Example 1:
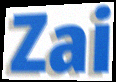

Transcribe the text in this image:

Zai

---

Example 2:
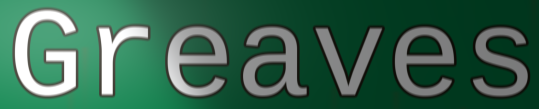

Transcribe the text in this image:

Greaves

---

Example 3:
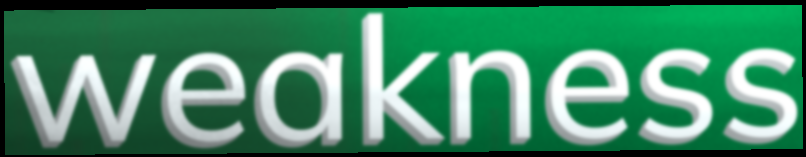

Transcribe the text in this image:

weakness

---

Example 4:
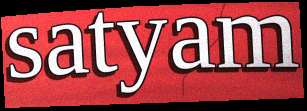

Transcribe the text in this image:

satyam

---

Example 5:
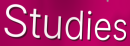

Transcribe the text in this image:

Studies